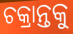
ଚକ୍ରାନ୍ତକୁ